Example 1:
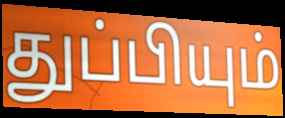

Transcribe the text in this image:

துப்பியும்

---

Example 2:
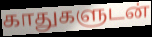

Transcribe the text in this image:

காதுகளுடன்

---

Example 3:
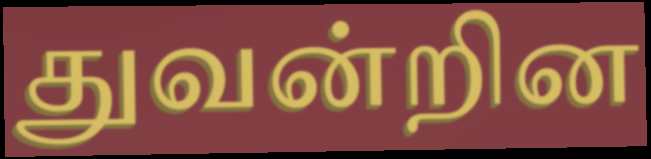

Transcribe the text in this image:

துவன்றின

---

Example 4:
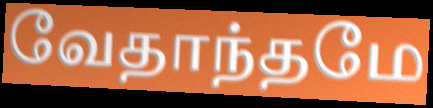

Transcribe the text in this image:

வேதாந்தமே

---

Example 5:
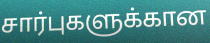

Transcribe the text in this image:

சார்புகளுக்கான